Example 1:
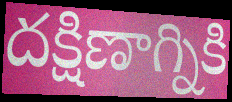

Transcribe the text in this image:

దక్షిణాగ్నికి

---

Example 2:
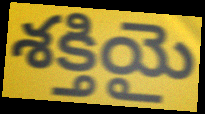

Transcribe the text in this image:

శక్తియై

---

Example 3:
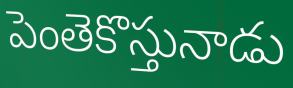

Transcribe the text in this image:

పెంతెకొస్తునాడు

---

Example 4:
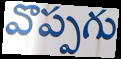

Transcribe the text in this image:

వొప్పగు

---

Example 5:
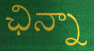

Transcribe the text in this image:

ఛిన్నా